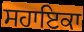
ਸਹਾਇਕਾ